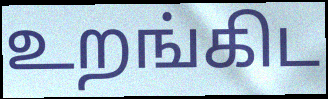
உறங்கிட